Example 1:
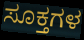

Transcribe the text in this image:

ಸೂಕ್ತಗಳ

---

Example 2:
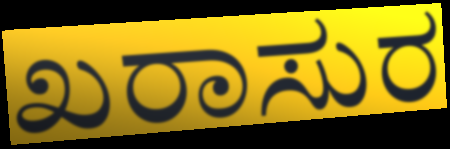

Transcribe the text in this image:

ಖರಾಸುರ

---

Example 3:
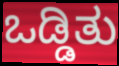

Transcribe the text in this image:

ಒಡ್ಡಿತು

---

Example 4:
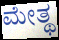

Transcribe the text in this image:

ಮೇತ್ಥ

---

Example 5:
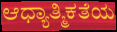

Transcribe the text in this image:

ಆಧ್ಯಾತ್ಮಿಕತೆಯ